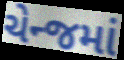
ચેન્જમાં